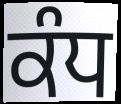
ਕੰਧ